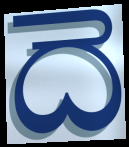
దె